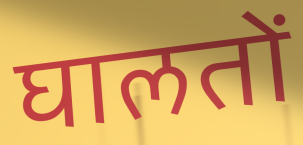
घालतों